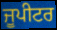
ਜੂਪੀਟਰ